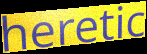
heretic